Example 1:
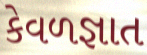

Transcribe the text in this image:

કેવળજ્ઞાત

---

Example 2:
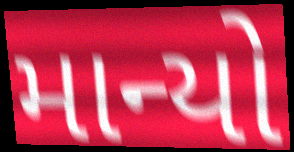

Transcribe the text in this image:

માન્યો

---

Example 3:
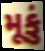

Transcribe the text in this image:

મૂકું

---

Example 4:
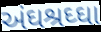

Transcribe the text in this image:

અંઘશ્રઘ્ઘા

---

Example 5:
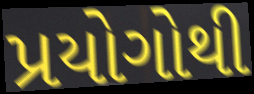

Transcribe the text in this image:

પ્રયોગોથી